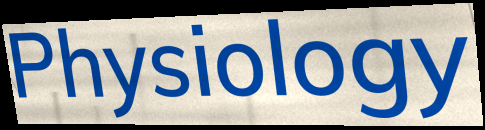
Physiology